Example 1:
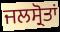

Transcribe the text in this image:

ਜਲਸ੍ਰੋਤਾਂ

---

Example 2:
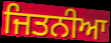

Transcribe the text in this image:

ਜਿਤਨੀਆ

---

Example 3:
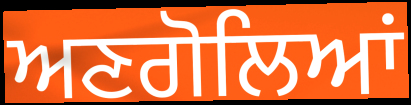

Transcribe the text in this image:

ਅਣਗੋਲਿਆਂ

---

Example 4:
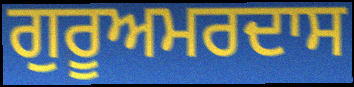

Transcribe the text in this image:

ਗੁਰੂਅਮਰਦਾਸ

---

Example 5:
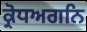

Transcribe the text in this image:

ਕ੍ਰੋਧਅਗਨਿ